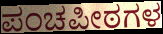
ಪಂಚಪೀಠಗಳ